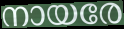
നായരേ